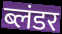
ब्लंडर